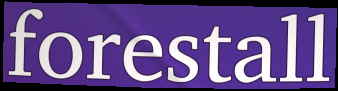
forestall